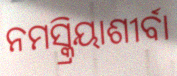
ନମସ୍କ୍ରିୟାଶୀର୍ବା